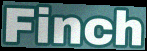
Finch